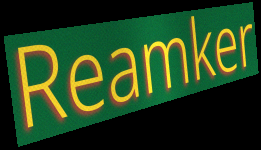
Reamker